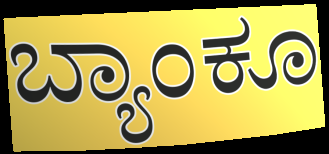
ಬ್ಯಾಂಕೂ